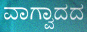
ವಾಗ್ವಾದದ